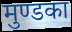
मुण्डका